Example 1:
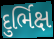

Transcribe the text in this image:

દુર્ભિક્ષ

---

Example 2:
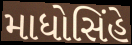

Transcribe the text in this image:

માધોસિંહે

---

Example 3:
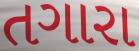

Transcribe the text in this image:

તગારા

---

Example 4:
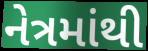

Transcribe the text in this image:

નેત્રમાંથી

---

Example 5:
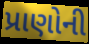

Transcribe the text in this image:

પ્રાણોની